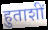
हुताशीं